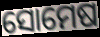
ସୋମେଷ